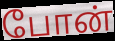
போன்